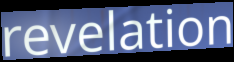
revelation